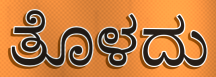
ತೊಳದು